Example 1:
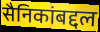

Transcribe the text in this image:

सैनिकांबद्दल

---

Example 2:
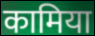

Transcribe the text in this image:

कामिया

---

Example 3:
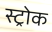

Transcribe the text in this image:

स्ट्रोक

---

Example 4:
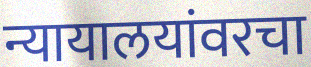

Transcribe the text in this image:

न्यायालयांवरचा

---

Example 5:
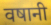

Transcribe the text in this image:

वषानी